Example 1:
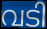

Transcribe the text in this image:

വടി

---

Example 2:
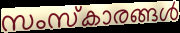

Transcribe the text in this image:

സംസ്കാരങ്ങൾ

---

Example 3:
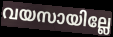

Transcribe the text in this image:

വയസായില്ലേ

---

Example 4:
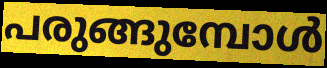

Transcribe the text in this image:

പരുങ്ങുമ്പോൾ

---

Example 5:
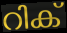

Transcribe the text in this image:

റിക്